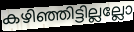
കഴിഞ്ഞിട്ടില്ലല്ലോ